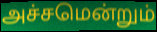
அச்சமென்றும்